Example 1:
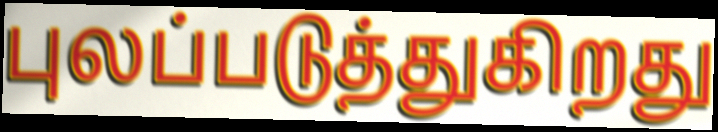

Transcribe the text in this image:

புலப்படுத்துகிறது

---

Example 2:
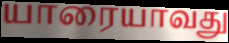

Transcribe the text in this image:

யாரையாவது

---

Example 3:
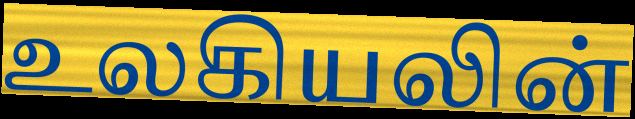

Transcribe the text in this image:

உலகியலின்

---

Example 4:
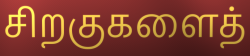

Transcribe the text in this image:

சிறகுகளைத்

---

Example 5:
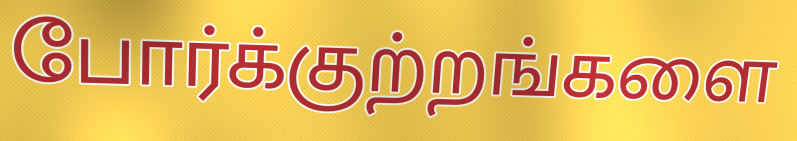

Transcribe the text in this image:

போர்க்குற்றங்களை